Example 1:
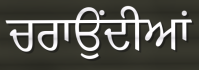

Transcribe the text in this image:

ਚਰਾਉਂਦੀਆਂ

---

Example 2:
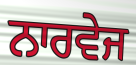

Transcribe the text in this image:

ਨਾਰਵੇਜ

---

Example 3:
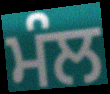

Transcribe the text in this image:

ਮੰਲ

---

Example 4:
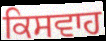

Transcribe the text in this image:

ਕਿਸਵਾਹ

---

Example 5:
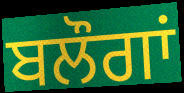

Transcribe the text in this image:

ਬਲੌਗਾਂ